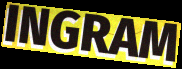
INGRAM